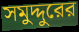
সমুদ্দুরের